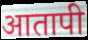
आतापी